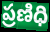
ప్రణిధి